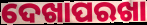
ଦେଖାପରଖା